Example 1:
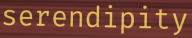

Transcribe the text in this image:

serendipity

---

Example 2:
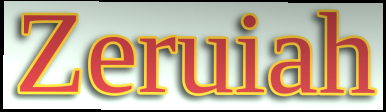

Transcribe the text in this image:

Zeruiah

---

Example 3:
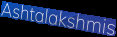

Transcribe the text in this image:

Ashtalakshmis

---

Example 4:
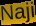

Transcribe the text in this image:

Naji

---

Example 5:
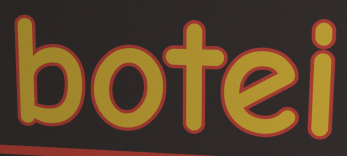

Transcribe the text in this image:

botei